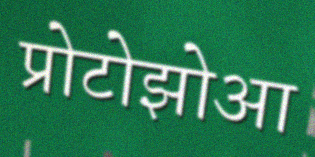
प्रोटोझोआ